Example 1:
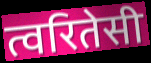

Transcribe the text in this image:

त्वरितेसी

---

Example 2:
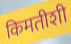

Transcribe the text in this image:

किमतीशी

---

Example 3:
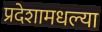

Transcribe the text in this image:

प्रदेशामधल्या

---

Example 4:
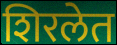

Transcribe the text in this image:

शिरलेत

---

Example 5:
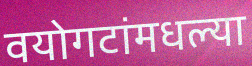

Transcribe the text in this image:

वयोगटांमधल्या